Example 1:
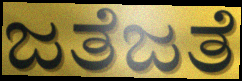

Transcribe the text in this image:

ಜತೆಜತೆ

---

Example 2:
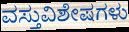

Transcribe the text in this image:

ವಸ್ತುವಿಶೇಷಗಳು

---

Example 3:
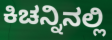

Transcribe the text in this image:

ಕಿಚನ್ನಿನಲ್ಲಿ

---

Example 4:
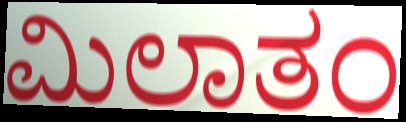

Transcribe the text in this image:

ಮಿಲಾತಂ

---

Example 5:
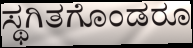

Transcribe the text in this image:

ಸ್ಥಗಿತಗೊಂಡರೂ